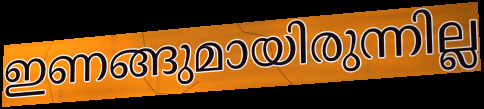
ഇണങ്ങുമായിരുന്നില്ല